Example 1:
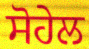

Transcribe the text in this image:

ਸੋਹੇਲ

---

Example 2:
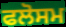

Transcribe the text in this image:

ਫਲੋਸਮ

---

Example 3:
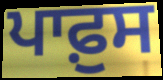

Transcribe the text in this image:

ਪਾਫ਼ੁਸ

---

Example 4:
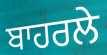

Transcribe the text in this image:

ਬਾਹਰਲੇ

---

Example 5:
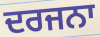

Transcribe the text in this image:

ਦਰਜਨਾ